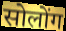
सोलोंग